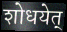
शोधयेत्